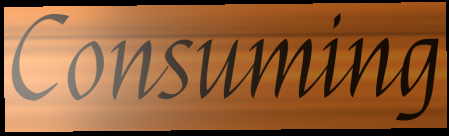
Consuming